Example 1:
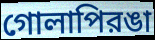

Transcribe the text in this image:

গোলাপিরঙা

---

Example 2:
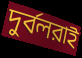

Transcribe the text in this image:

দুর্বলরাই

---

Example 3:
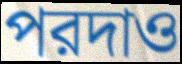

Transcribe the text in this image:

পরদাও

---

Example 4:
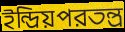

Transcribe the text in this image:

ইন্দ্রিয়পরতন্ত্র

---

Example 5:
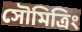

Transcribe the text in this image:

সৌমিত্রিং